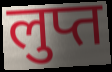
लुप्‍त